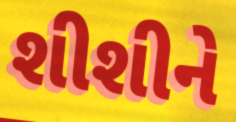
શીશીને